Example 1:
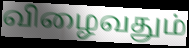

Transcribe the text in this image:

விழைவதும்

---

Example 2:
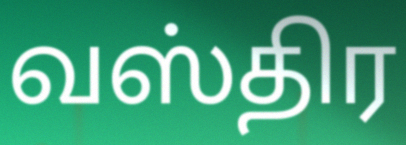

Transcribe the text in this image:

வஸ்திர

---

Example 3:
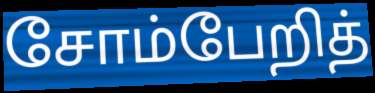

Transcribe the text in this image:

சோம்பேறித்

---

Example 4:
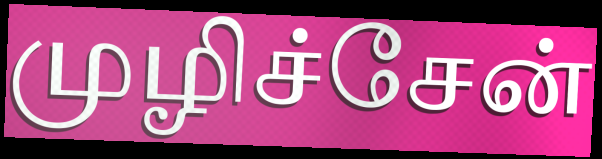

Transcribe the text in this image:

முழிச்சேன்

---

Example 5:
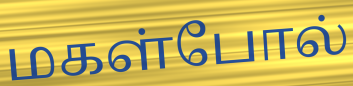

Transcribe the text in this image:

மகள்போல்